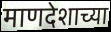
माणदेशाच्या